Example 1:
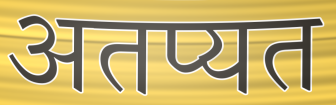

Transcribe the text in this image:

अतप्यत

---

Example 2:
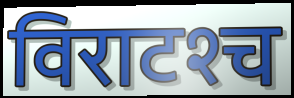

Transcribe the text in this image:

विराटश्च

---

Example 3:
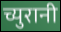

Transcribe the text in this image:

च्युरानी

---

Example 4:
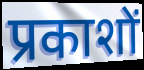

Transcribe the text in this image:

प्रकाशों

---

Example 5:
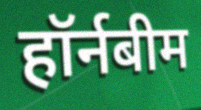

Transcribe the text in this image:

हॉर्नबीम